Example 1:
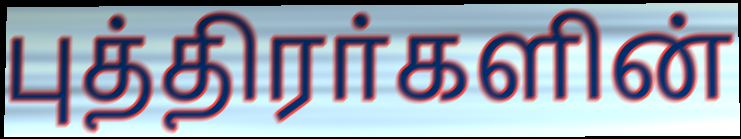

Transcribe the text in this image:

புத்திரர்களின்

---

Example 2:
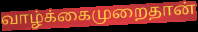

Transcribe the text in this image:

வாழ்க்கைமுறைதான்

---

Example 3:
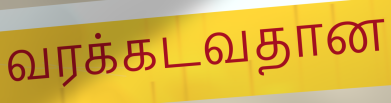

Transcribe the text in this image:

வரக்கடவதான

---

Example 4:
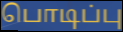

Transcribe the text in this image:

பொடிப்பு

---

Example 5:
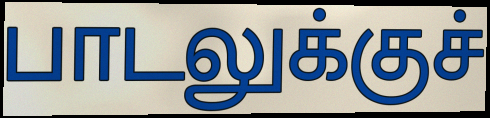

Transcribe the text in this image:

பாடலுக்குச்